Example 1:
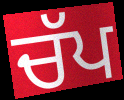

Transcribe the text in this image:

ਚੱਪ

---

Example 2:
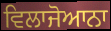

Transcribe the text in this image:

ਵਿਲਾਜੋਆਨਾ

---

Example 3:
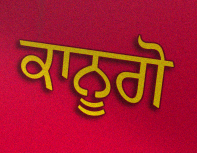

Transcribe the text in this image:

ਕਾਨੂਗੋ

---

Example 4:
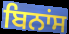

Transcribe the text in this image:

ਬਿਨਾਂਸ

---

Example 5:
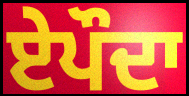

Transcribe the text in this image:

ਏਪੌਦਾ